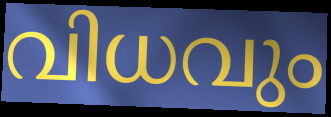
വിധവും